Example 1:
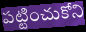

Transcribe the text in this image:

పట్టించుకోని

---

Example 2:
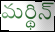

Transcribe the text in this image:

మర్థిన్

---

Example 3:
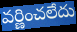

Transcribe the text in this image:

వర్ణించలేదు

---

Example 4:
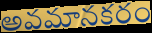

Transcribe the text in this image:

అవమానకరం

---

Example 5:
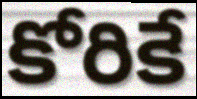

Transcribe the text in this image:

కోరికే